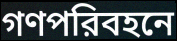
গণপরিবহনে